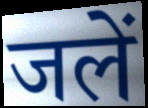
जलें